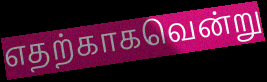
எதற்காகவென்று